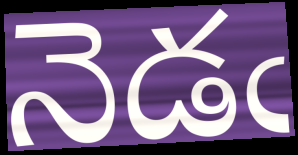
నెడఁ